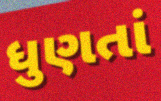
ધુણતાં